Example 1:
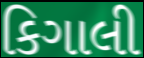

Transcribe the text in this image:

કિગાલી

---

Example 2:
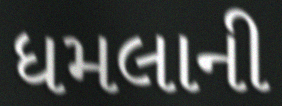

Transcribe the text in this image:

ધમલાની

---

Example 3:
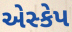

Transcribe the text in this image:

એસ્કેપ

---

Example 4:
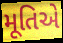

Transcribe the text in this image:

મૂતિએ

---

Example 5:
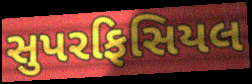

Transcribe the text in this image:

સુપરફિસિયલ